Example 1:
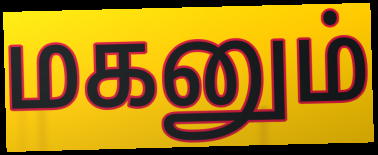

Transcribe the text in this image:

மகனும்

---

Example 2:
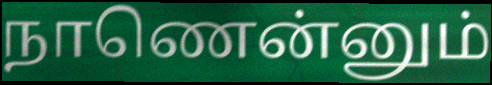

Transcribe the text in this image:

நாணென்னும்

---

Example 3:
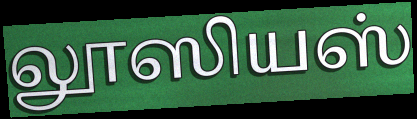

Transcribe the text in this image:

லூஸியஸ்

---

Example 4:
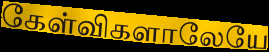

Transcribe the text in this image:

கேள்விகளாலேயே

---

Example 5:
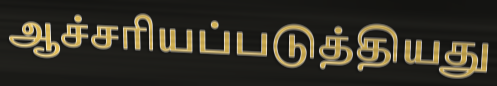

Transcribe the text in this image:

ஆச்சரியப்படுத்தியது